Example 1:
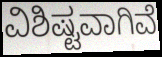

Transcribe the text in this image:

ವಿಶಿಷ್ಟವಾಗಿವೆ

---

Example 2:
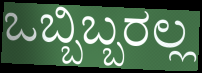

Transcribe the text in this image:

ಒಬ್ಬಿಬ್ಬರಲ್ಲ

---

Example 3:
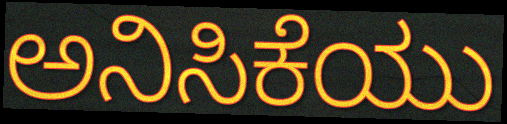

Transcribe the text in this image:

ಅನಿಸಿಕೆಯು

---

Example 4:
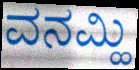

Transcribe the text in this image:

ವನಮ್ಹಿ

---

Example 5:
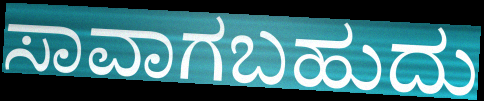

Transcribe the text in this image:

ಸಾವಾಗಬಹುದು